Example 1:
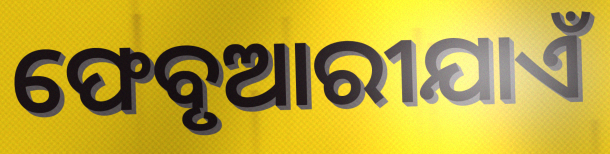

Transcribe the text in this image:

ଫେବୃଆରୀଯାଏଁ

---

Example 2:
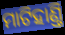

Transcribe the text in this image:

ମାଟିହାଣ୍ତି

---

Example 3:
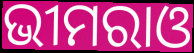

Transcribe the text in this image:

ଭୀମରାଓ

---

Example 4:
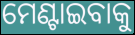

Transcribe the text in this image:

ମେଣ୍ଟାଇବାକୁ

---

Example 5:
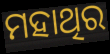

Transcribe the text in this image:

ମହାଥିର